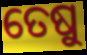
ତେଷୁ